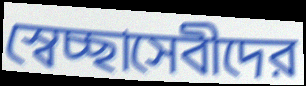
স্বেচ্ছাসেবীদের